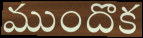
ముందొక